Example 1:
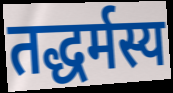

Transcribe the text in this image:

तद्धर्मस्य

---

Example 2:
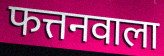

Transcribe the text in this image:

फत्तनवाला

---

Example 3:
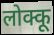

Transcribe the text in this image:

लोक्कू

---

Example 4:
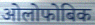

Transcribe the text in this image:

ओलोफोबिक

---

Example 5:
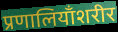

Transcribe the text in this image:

प्रणालियाँशरीर